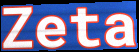
Zeta